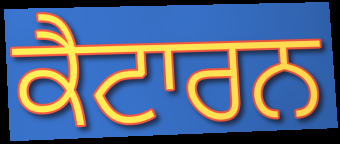
ਕੈਟਾਰਨ